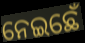
ନେଇଛେଁ